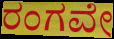
ರಂಗವೇ